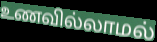
உணவில்லாமல்